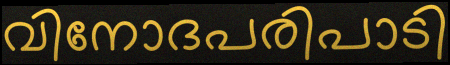
വിനോദപരിപാടി